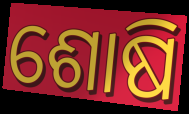
ଶୋଷି